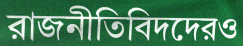
রাজনীতিবিদদেরও